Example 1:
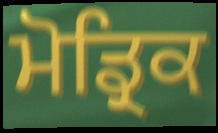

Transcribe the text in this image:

ਮੋਡ੍ਰਿਕ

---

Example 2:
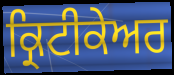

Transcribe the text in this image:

ਕ੍ਰਿਟੀਕੇਅਰ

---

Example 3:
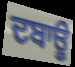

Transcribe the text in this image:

ਦਬਾਊ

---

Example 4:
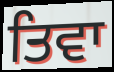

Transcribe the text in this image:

ਤਿਵਾ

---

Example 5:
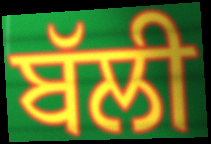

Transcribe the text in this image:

ਬੱਲੀ